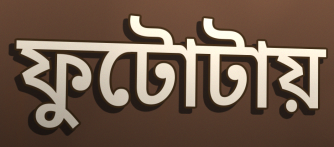
ফুটোটায়